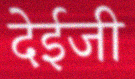
देईजी